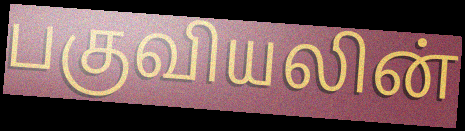
பகுவியலின்